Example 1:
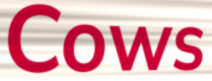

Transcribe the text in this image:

Cows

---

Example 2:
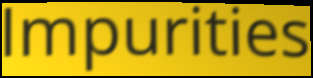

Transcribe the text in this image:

Impurities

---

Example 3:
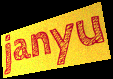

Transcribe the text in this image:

janyu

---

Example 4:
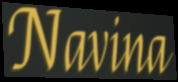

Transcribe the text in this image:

Navina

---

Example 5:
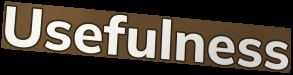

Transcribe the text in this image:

Usefulness